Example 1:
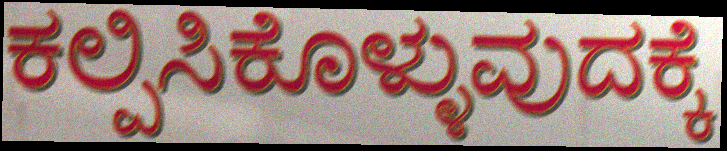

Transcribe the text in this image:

ಕಲ್ಪಿಸಿಕೊಳ್ಳುವುದಕ್ಕೆ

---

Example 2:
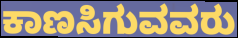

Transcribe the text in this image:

ಕಾಣಸಿಗುವವರು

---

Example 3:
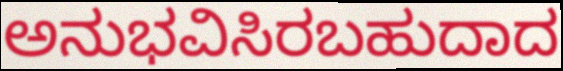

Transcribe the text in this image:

ಅನುಭವಿಸಿರಬಹುದಾದ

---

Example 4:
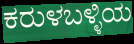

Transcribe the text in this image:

ಕರುಳಬಳ್ಳಿಯ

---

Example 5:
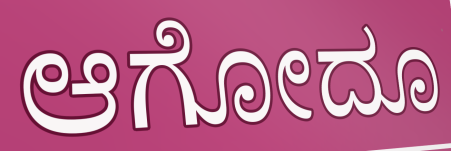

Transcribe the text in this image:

ಆಗೋದೂ